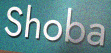
Shoba